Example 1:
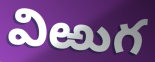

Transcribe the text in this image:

విఱుగ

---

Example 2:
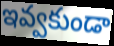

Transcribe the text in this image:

ఇవ్వకుండా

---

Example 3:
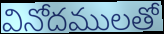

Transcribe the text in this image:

వినోదములతో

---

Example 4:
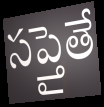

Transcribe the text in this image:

సప్తైతే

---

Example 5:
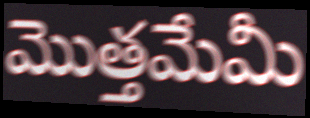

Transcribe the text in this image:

మొత్తమేమీ